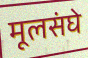
मूलसंघे